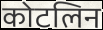
कोटलिन